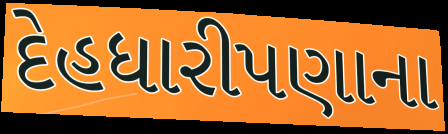
દેહધારીપણાના